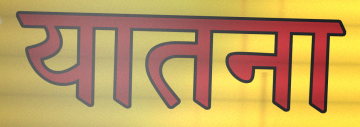
यातना